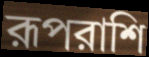
রূপরাশি